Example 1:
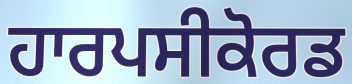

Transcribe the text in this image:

ਹਾਰਪਸੀਕੋਰਡ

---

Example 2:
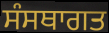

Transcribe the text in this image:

ਸੰਸਥਾਗਤ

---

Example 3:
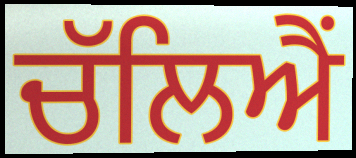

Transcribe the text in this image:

ਚੱਲਿਐਂ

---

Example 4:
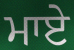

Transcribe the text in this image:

ਮਾਏ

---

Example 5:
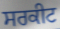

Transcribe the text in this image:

ਸਰਕੀਟ